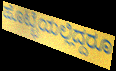
ಹೊಟ್ಟೆಯಲ್ಲಿದ್ದರೂ